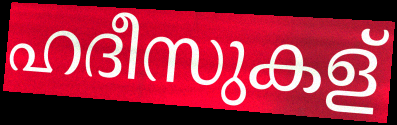
ഹദീസുകള്